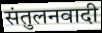
संतुलनवादी